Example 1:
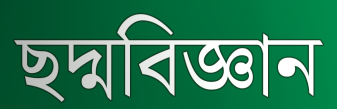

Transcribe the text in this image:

ছদ্মবিজ্ঞান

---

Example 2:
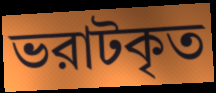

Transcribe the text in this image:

ভরাটকৃত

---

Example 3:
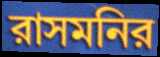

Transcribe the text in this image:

রাসমনির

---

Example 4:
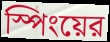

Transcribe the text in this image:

স্পিংয়ের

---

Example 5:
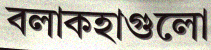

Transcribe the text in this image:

বলাকহাগুলো